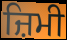
ਜ਼ਿਮੀ